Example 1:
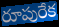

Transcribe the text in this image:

రూపురేక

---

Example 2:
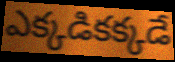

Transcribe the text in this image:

ఎక్కడికక్కడే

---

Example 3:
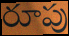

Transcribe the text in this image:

రూపు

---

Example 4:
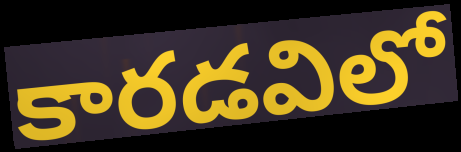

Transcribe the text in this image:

కారడవిలో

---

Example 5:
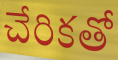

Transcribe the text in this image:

చేరికతో